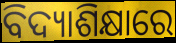
ବିଦ୍ୟାଶିକ୍ଷାରେ